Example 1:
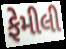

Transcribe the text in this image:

ફેમીલી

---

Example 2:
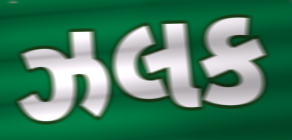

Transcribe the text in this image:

ઝલક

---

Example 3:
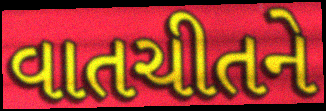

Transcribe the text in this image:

વાતચીતને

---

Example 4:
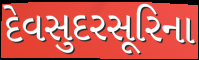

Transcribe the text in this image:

દેવસુદરસૂરિના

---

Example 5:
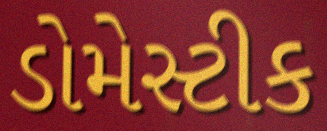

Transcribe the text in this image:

ડોમેસ્ટીક